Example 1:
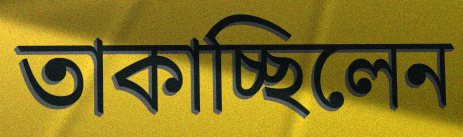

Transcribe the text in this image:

তাকাচ্ছিলেন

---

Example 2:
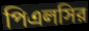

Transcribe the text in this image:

পিএলসির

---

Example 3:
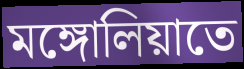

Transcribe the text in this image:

মঙ্গোলিয়াতে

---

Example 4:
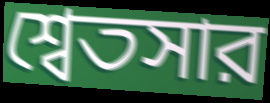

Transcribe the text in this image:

শ্বেতসার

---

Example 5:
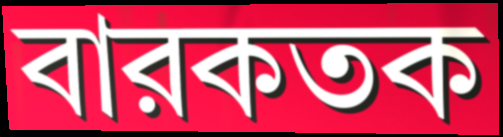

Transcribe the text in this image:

বারকতক